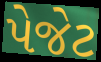
પેજેટ